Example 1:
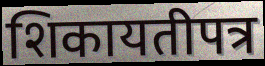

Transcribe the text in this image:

शिकायतीपत्र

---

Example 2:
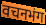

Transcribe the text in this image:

वचनभंग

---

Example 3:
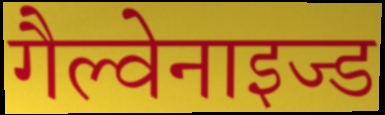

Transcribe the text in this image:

गैल्वेनाइज्ड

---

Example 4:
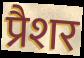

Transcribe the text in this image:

प्रैशर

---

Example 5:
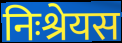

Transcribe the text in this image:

निःश्रेयस